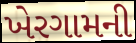
ખેરગામની